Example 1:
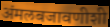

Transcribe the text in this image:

अंमलबजावणीशी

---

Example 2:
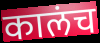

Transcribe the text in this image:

कालंच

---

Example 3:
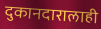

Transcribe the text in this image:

दुकानदारालाही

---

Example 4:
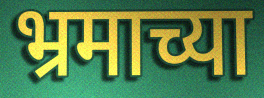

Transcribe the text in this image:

भ्रमाच्या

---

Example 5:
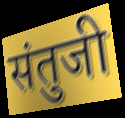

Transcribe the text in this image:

संतुजी